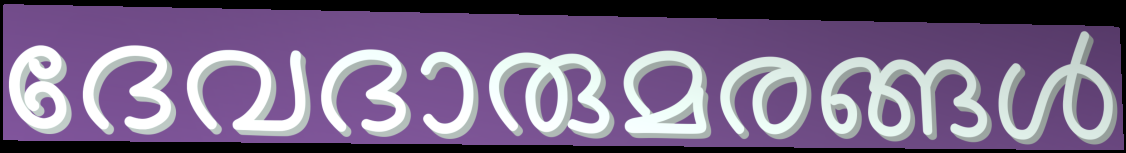
ദേവദാരുമരങ്ങൾ